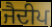
ਜੈਦੀਪ